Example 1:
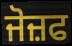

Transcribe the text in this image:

ਜੋਜ਼ਫ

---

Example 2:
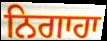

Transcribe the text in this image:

ਨਿਗਾਹਾ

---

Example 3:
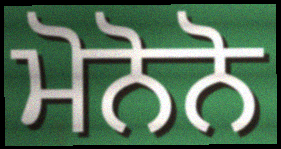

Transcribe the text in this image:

ਮੋਨੋਨੋ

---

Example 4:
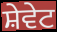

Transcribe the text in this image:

ਸ਼ੇਵੇਟ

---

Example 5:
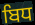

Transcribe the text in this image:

ਬਿਧ